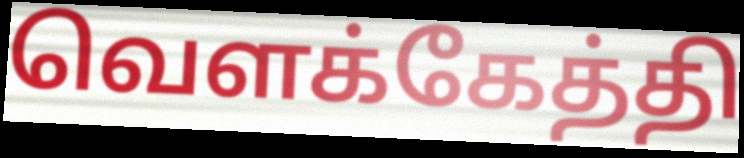
வெளக்கேத்தி